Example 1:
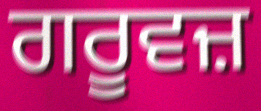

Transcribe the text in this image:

ਗਰੂਵਜ਼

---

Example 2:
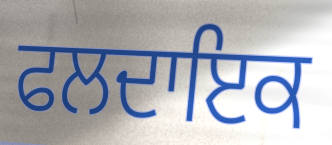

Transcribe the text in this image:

ਫਲਦਾਇਕ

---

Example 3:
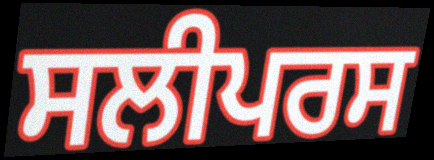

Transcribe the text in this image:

ਸਲੀਪਰਸ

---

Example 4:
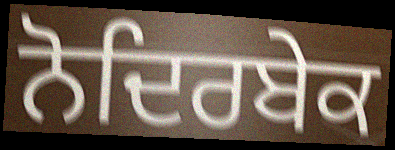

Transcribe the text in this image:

ਨੋਦਿਰਬੇਕ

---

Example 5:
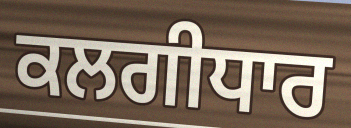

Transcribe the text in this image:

ਕਲਗੀਧਾਰ